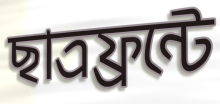
ছাত্রফ্রন্টে